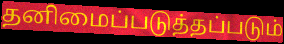
தனிமைப்படுத்தப்படும்